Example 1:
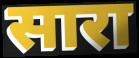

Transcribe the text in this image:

सारा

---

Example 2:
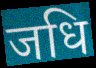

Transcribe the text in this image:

जधि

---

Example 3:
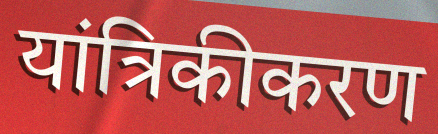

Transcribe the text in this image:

यांत्रिकीकरण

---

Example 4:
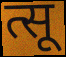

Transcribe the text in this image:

त्सू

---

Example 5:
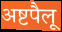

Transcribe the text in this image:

अष्टपैलू